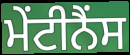
ਮੇਂਟੀਨੈਂਸ